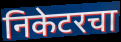
निकेटरचा